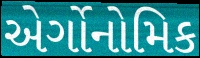
એર્ગોનોમિક